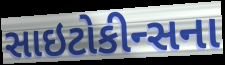
સાઇટોકીન્સના